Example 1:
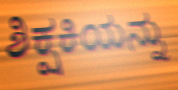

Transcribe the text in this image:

ಶಿಕ್ಷಕಿಯನ್ನು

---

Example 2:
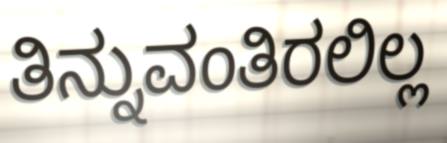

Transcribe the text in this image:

ತಿನ್ನುವಂತಿರಲಿಲ್ಲ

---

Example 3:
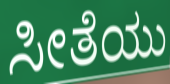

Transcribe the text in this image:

ಸೀತೆಯು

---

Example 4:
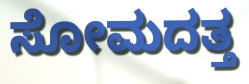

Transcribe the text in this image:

ಸೋಮದತ್ತ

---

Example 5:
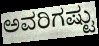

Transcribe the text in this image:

ಅವರಿಗಷ್ಟು